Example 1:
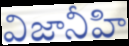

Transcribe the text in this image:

విజానీహి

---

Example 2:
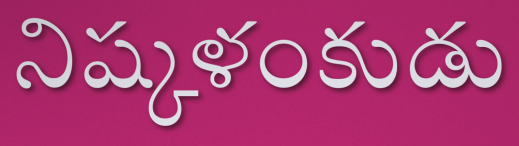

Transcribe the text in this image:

నిష్కళంకుడు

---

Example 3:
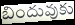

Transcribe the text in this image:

బిందువుకు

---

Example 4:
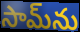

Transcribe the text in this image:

సామ్‌ను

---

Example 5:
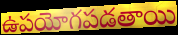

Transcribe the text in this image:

ఉపయోగపడతాయి